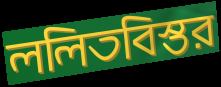
ললিতবিস্তর